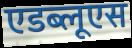
एडब्लूएस